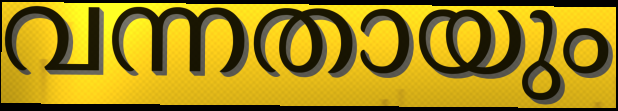
വന്നതായും